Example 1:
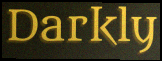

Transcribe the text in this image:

Darkly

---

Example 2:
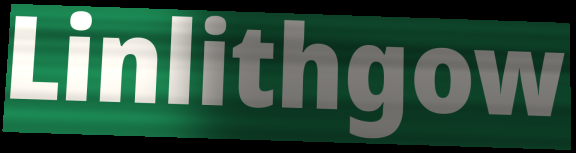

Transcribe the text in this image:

Linlithgow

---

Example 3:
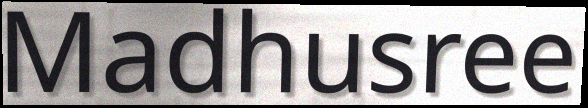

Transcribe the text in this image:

Madhusree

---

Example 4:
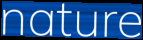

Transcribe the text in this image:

nature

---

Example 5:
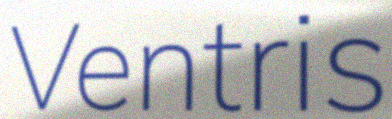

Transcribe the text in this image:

Ventris